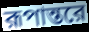
রূপান্তরে